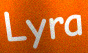
Lyra